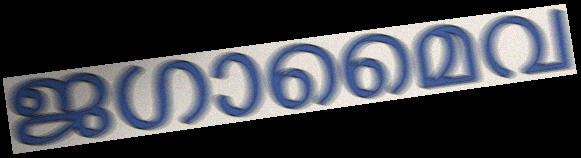
ജഗാമൈവ